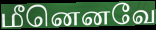
மீனெனவே